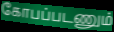
கோபப்படணும்